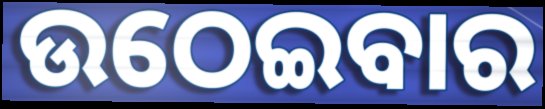
ଉଠେଇବାର